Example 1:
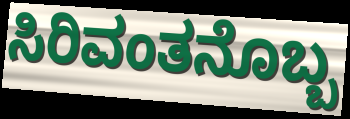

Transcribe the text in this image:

ಸಿರಿವಂತನೊಬ್ಬ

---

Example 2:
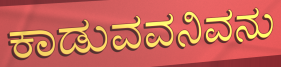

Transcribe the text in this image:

ಕಾಡುವವನಿವನು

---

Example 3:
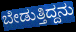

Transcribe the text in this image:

ಬೇಡುತ್ತಿದ್ದನು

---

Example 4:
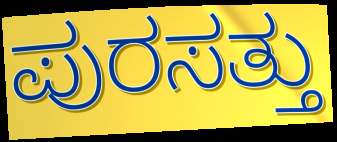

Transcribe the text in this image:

ಪುರಸತ್ತು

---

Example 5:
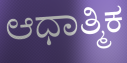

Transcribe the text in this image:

ಆಧಾತ್ಮಿಕ